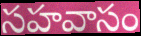
సహవాసం